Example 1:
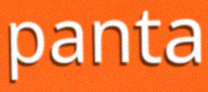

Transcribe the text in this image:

panta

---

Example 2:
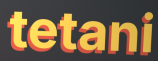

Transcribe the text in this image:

tetani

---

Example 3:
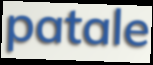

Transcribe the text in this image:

patale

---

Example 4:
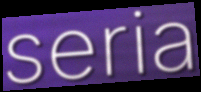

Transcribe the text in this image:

seria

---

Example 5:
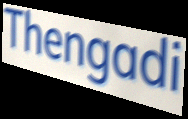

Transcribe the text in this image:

Thengadi